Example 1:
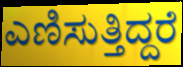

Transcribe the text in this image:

ಎಣಿಸುತ್ತಿದ್ದರೆ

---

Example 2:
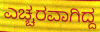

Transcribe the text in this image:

ಎಚ್ಚರವಾಗಿದ್ದ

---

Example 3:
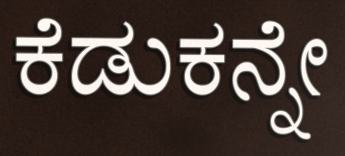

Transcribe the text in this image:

ಕೆಡುಕನ್ನೇ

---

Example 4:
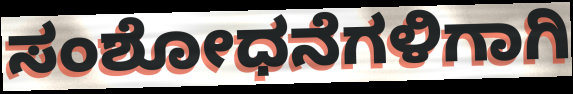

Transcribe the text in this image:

ಸಂಶೋಧನೆಗಳಿಗಾಗಿ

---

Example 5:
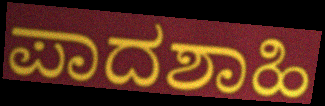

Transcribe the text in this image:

ಪಾದಶಾಹಿ